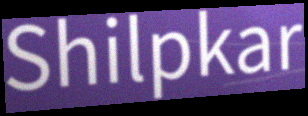
Shilpkar